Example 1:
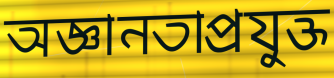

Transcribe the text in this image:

অজ্ঞানতাপ্রযুক্ত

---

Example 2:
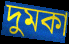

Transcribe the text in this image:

দুমকা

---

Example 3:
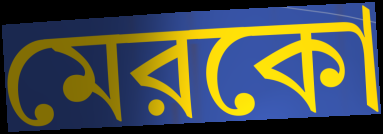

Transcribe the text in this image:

মেরকো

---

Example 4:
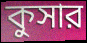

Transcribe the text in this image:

কুসার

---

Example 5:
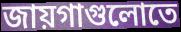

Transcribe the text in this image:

জায়গাগুলোতে